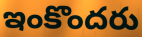
ఇంకొందరు